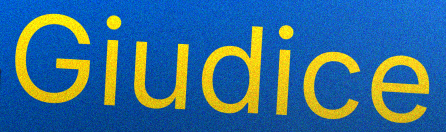
Giudice